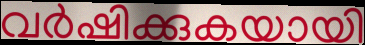
വർഷിക്കുകയായി